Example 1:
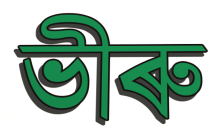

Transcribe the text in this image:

ভীৰু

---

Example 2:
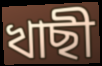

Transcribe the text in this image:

খাছী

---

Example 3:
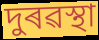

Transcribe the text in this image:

দুৰৱস্থা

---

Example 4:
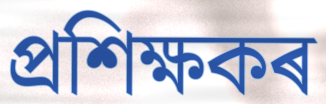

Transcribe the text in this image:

প্ৰশিক্ষকৰ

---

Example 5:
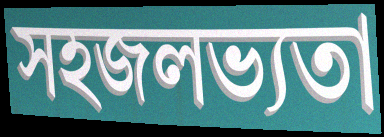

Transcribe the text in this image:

সহজলভ্যতা